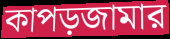
কাপড়জামার